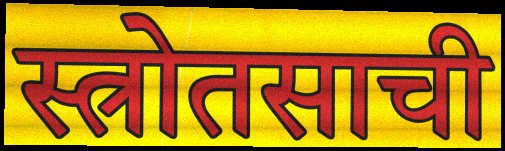
स्त्रोतसाची